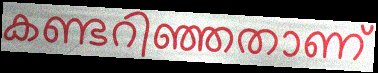
കണ്ടറിഞ്ഞതാണ്